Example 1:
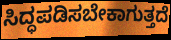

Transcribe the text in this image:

ಸಿದ್ಧಪಡಿಸಬೇಕಾಗುತ್ತದೆ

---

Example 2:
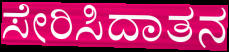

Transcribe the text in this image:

ಸೇರಿಸಿದಾತನ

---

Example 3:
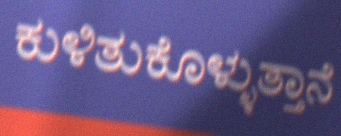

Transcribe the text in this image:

ಕುಳಿತುಕೊಳ್ಳುತ್ತಾನೆ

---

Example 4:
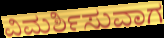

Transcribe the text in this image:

ವಿಮರ್ಶಿಸುವಾಗ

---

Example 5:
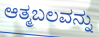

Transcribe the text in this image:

ಆತ್ಮಬಲವನ್ನು